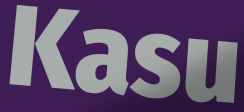
Kasu